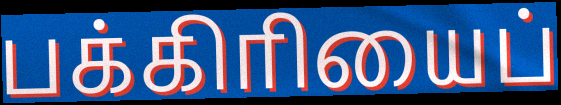
பக்கிரியைப்